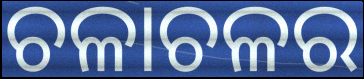
ଚଳାଚଳର